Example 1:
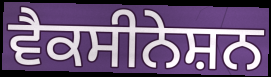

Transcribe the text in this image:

ਵੈਕਸੀਨੇਸ਼ਨ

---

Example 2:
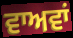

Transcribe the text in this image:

ਵਾਅਵਾਂ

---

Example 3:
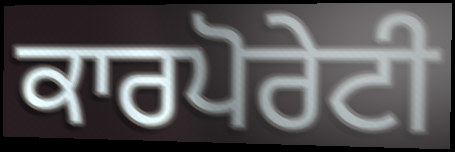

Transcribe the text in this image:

ਕਾਰਪੋਰੇਟੀ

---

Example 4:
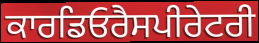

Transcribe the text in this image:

ਕਾਰਡਿਓਰੈਸਪੀਰੇਟਰੀ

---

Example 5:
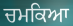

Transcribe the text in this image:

ਚਮਕਿਆ